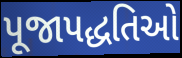
પૂજાપદ્ધતિઓ